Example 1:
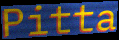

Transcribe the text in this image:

Pitta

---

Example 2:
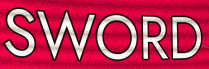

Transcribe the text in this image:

SWORD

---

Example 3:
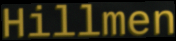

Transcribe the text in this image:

Hillmen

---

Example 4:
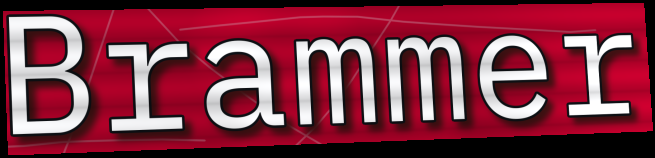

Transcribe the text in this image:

Brammer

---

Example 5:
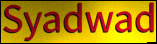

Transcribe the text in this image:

Syadwad